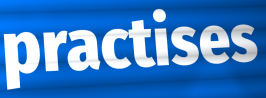
practises